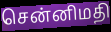
சென்னிமதி